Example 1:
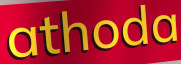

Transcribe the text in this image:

athoda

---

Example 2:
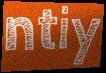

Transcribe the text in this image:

ntiy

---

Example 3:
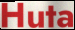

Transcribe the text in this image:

Huta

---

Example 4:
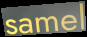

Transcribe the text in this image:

samel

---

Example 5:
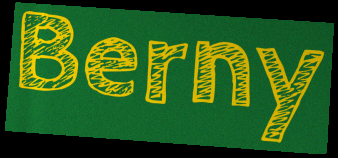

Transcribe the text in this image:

Berny